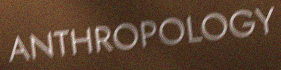
ANTHROPOLOGY